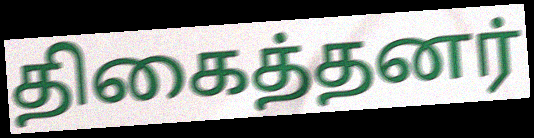
திகைத்தனர்